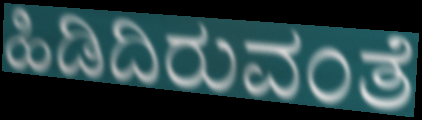
ಹಿಡಿದಿರುವಂತೆ